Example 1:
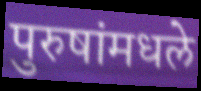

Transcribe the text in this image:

पुरुषांमधले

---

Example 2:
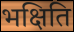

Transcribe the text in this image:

भक्षिति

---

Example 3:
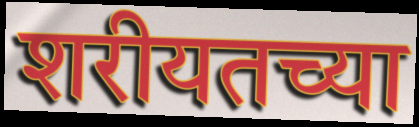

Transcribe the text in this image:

शरीयतच्या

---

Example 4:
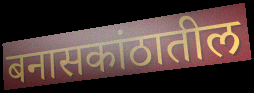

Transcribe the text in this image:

बनासकांठातील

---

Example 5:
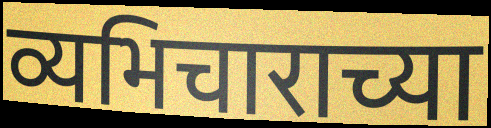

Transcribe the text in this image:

व्यभिचाराच्या